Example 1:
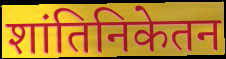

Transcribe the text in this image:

शांतिनिकेतन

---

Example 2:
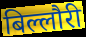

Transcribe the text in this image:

बिल्लौरी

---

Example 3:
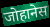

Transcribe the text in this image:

जोहानेस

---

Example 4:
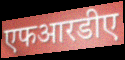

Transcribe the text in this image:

एफआरडीए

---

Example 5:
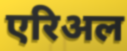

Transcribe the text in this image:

एरिअल